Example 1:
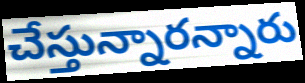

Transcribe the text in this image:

చేస్తున్నారన్నారు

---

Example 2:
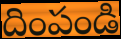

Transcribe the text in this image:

దింపండి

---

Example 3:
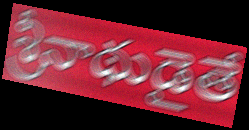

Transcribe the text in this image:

శ్రీనాథుడైతే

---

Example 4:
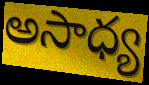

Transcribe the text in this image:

అసాధ్య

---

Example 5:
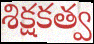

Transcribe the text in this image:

శిక్షకత్వ